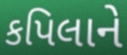
કપિલાને